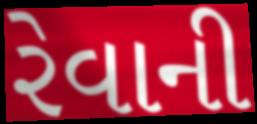
રેવાની